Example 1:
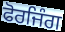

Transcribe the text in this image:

ਫੋਰਜਿੰਗ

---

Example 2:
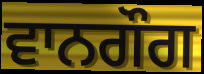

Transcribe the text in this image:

ਵਾਨਗੌਗ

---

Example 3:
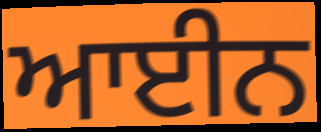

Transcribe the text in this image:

ਆਈਨ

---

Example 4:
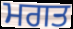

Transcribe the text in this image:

ਮਗਤ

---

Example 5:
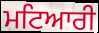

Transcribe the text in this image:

ਮਟਿਆਰੀ